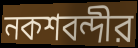
নকশবন্দীর